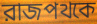
রাজপথকে